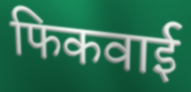
फिकवाई